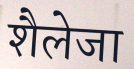
शैलेजा